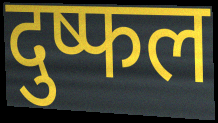
दुष्फल